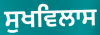
ਸੁਖਵਿਲਾਸ